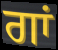
ਗਾਂ